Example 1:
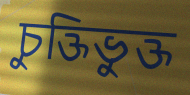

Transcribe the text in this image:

চুক্তিভুক্ত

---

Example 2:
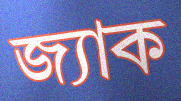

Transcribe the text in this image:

জ্যাক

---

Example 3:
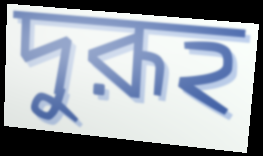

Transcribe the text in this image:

দুরূহ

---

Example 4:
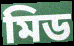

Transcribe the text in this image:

মিড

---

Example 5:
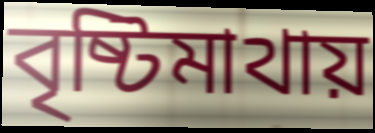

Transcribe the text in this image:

বৃষ্টিমাথায়